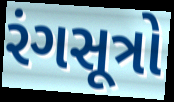
રંગસૂત્રો